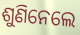
ଶୁଣିନେଲେ